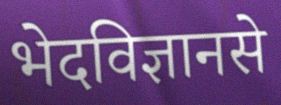
भेदविज्ञानसे